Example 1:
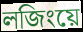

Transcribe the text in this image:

লজিংয়ে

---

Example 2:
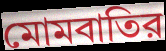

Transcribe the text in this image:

মোমবাতির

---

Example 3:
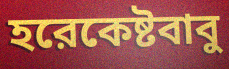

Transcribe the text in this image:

হরেকেষ্টবাবু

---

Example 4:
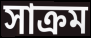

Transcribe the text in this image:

সাক্রম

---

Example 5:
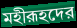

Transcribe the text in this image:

মহীরূহদের